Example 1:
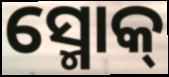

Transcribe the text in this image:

ସ୍ମୋକ୍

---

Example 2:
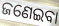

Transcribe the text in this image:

ଜଣେଇବା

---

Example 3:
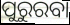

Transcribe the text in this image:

ପୁରୁରବା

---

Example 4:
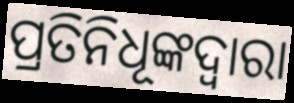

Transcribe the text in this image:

ପ୍ରତିନିଧୂଙ୍କଦ୍ଵାରା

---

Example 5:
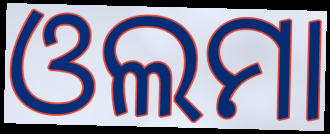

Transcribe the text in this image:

ଓଲମା